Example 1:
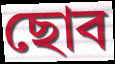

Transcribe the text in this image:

ছোব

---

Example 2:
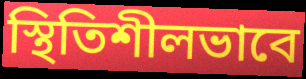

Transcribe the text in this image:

স্থিতিশীলভাবে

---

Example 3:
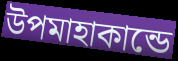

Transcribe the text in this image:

উপমাহাকান্ডে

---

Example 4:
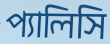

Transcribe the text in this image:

প্যালিসি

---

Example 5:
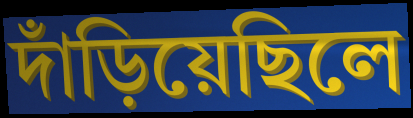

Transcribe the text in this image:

দাঁড়িয়েছিলে